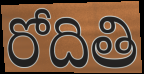
రోదితి